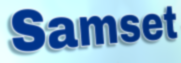
Samset